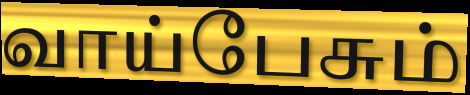
வாய்பேசும்